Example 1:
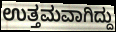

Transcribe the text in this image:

ಉತ್ತಮವಾಗಿದ್ದು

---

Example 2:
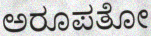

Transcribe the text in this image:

ಅರೂಪತೋ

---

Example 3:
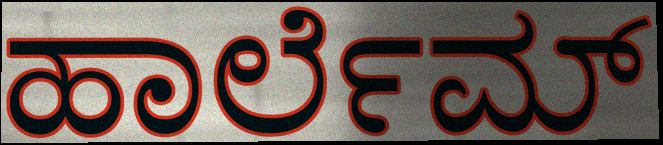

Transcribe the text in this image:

ಹಾರ್ಲೆಮ್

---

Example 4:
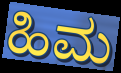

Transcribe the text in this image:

ಹಿಮ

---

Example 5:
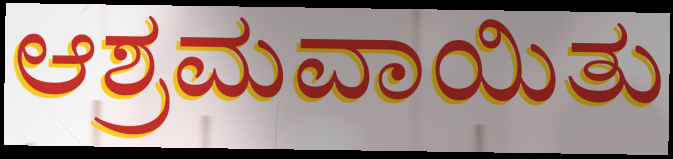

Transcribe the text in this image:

ಆಶ್ರಮವಾಯಿತು